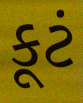
કૂટં